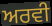
ਅਰਵੀ